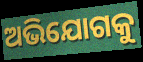
ଅଭିଯୋଗକୁ